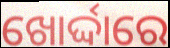
ଖୋର୍ଦ୍ଦାରେ